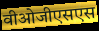
वीओजीएसएस